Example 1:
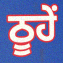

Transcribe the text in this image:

ਠੂਹੇਂ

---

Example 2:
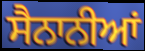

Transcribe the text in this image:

ਸੈਨਾਨੀਆਂ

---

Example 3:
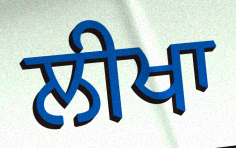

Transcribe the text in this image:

ਲੀਖਾ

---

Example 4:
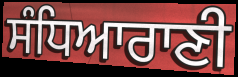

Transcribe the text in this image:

ਸੰਧਿਆਰਾਣੀ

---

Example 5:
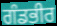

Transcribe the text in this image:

ਗੰਡਭੀਰ